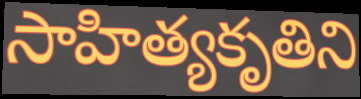
సాహిత్యకృతిని